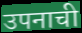
उपनाची